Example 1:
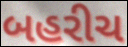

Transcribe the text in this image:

બહરીચ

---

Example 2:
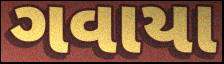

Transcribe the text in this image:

ગવાયા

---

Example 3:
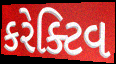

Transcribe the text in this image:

કરેક્ટિવ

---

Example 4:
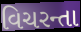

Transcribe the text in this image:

વિચરન્તા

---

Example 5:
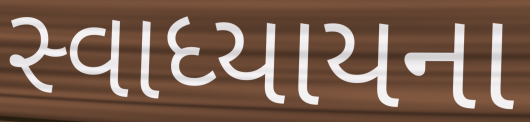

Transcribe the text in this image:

સ્વાધ્યાયના